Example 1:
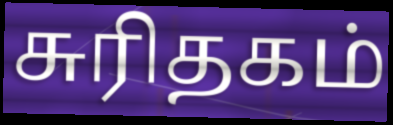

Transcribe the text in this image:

சுரிதகம்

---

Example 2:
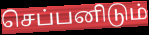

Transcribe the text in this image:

செப்பனிடும்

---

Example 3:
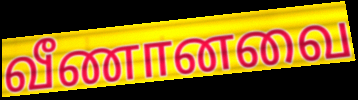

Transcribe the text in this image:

வீணானவை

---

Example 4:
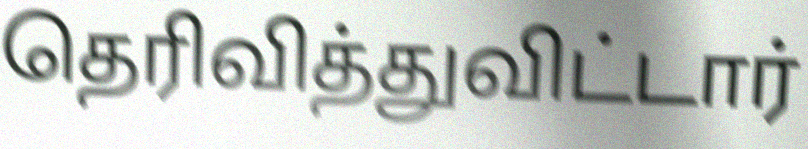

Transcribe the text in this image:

தெரிவித்துவிட்டார்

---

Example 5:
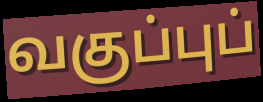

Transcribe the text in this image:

வகுப்புப்